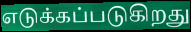
எடுக்கப்படுகிறது